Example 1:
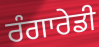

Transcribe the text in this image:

ਰੰਗਾਰੇਡੀ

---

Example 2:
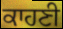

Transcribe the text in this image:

ਕਾਹਣੀ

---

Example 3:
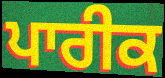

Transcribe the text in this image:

ਪਾਰੀਕ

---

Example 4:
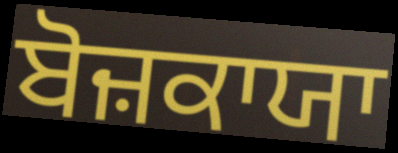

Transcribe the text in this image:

ਬੋਜ਼ਕਾਯਾ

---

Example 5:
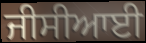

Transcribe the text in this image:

ਜੀਸੀਆਈ